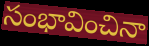
సంభావించినా